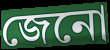
জেনো